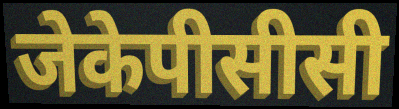
जेकेपीसीसी